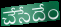
చేసేదేం